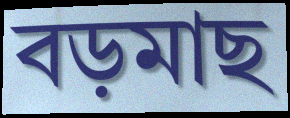
বড়মাছ